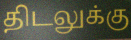
திடலுக்கு